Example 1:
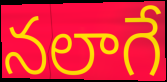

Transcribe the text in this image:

నలాగే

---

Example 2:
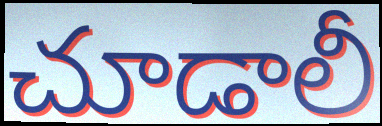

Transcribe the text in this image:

చూడాలీ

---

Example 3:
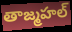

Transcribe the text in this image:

తాజ్మహల్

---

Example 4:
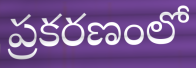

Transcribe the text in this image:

ప్రకరణంలో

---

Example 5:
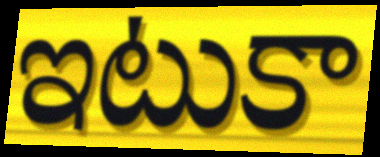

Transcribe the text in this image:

ఇటుకా